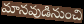
మానవుడినుంచి